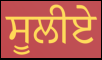
ਸੂਲੀਏ